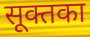
सूक्तका